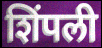
शिंपली